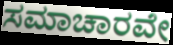
ಸಮಾಚಾರವೇ